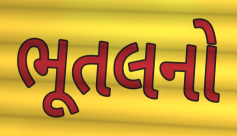
ભૂતલનો